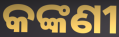
କଙ୍କଣୀ